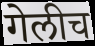
गेलीच